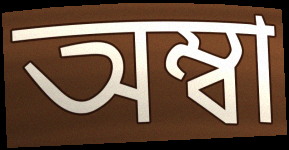
অম্বা